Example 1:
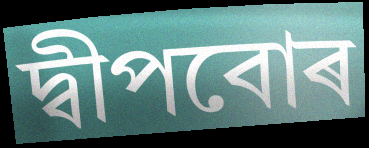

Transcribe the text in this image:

দ্বীপবোৰ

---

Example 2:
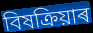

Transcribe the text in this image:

বিষক্ৰিয়াৰ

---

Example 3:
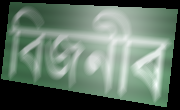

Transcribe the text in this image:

বিজনীৰ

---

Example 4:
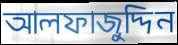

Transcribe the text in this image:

আলফাজুদ্দিন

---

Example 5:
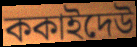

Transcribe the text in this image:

ককাইদেউ